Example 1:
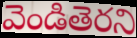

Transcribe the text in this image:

వెండితెరని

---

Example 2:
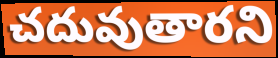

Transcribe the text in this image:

చదువుతారని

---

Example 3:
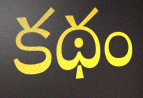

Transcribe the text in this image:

కథం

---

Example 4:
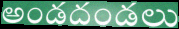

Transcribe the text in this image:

అండదండలు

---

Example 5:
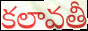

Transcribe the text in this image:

కలావతీ